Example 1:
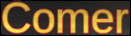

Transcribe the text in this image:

Comer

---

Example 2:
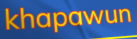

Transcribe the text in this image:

khapawun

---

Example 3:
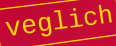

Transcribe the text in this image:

veglich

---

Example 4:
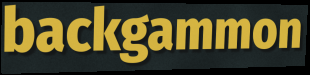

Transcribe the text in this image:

backgammon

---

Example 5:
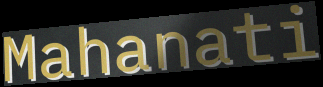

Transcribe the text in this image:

Mahanati